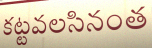
కట్టవలసినంత